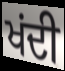
ਖਂਦੀ